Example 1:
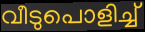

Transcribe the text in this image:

വീടുപൊളിച്ച്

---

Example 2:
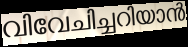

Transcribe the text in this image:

വിവേചിച്ചറിയാൻ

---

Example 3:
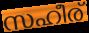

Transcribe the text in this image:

സഹീര്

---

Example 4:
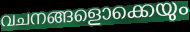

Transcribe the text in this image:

വചനങ്ങളൊക്കെയും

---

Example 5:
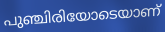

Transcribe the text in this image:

പുഞ്ചിരിയോടെയാണ്